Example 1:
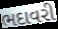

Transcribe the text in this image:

ભદાવરી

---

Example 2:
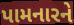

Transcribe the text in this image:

પામનારને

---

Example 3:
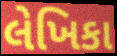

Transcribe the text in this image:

લેખિકા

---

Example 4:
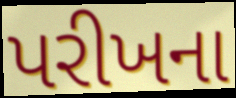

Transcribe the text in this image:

પરીખના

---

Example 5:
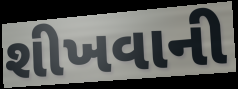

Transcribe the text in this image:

શીખવાની